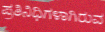
ಪ್ರತಿನಿಧಿಗಳಾಗಿರುವ